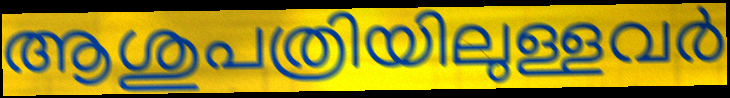
ആശുപത്രിയിലുള്ളവർ